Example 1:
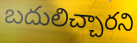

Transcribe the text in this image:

బదులిచ్చారని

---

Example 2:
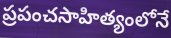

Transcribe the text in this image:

ప్రపంచసాహిత్యంలోనే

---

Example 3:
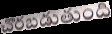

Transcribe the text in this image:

చొరబడుతుంది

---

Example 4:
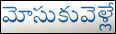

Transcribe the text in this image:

మోసుకువెళ్లే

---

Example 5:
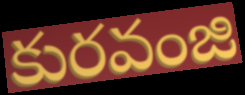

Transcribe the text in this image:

కురవంజి